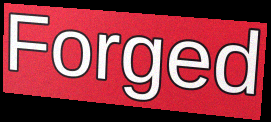
Forged